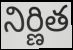
నిర్ణిత